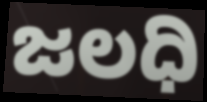
ಜಲಧಿ